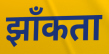
झाँकता